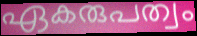
ഏകരുപത്വം